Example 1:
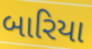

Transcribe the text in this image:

બારિયા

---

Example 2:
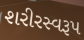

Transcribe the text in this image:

શરીરસ્વરૂપ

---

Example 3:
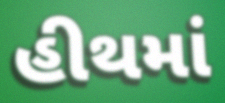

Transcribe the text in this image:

હીથમાં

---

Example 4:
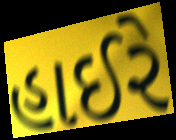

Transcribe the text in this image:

હાઈરે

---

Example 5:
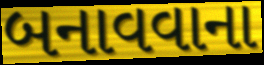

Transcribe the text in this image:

બનાવવાના